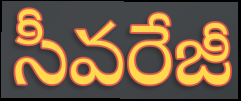
సీవరేజీ